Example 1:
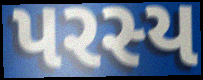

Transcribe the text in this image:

પરસ્ય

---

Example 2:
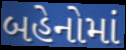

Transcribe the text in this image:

બહેનોમાં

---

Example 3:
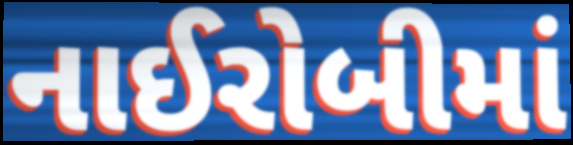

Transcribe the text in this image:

નાઈરોબીમાં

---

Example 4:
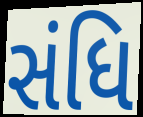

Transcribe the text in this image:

સંધિ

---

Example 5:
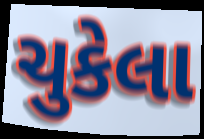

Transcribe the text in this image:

ચુકેલા